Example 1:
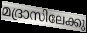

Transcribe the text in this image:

മദ്രാസിലേക്കു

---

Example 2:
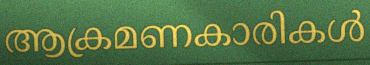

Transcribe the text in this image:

ആക്രമണകാരികൾ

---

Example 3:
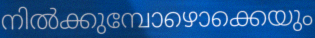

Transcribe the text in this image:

നിൽക്കുമ്പോഴൊക്കെയും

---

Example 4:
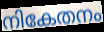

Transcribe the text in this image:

നികേതനം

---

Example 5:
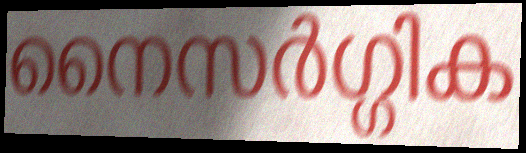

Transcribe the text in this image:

നൈസർഗ്ഗിക